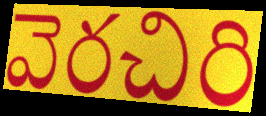
వెరచిరి